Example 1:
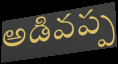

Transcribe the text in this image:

అడివప్ప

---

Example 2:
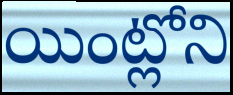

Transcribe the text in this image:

యింట్లోని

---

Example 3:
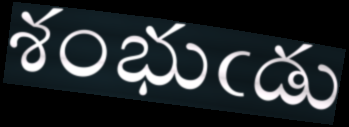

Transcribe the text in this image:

శంభుఁడు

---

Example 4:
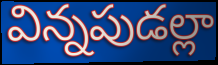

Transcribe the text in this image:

విన్నపుడల్లా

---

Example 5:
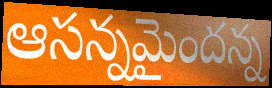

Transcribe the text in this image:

ఆసన్నమైందన్న